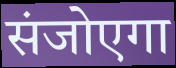
संजोएगा